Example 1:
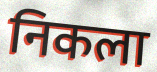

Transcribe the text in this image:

निकला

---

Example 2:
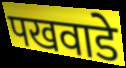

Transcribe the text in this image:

पखवाडे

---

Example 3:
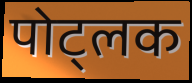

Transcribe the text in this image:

पोट्लक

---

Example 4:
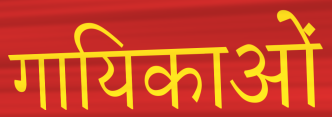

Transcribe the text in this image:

गायिकाओं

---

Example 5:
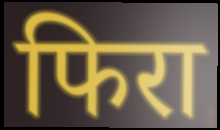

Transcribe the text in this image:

फिरा